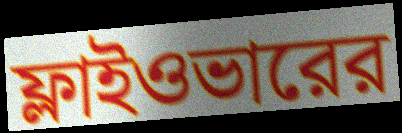
ফ্লাইওভারের